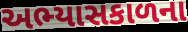
અભ્યાસકાળના